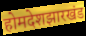
होमदेशझारखंड